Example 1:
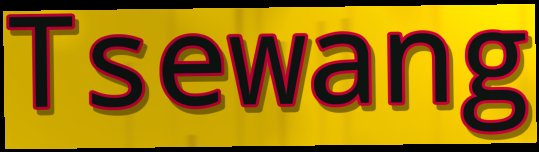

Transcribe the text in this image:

Tsewang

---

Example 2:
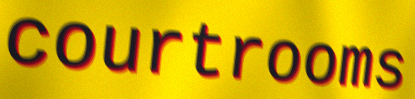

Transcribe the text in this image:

courtrooms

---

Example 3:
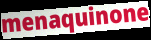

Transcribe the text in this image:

menaquinone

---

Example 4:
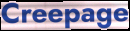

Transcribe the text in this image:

Creepage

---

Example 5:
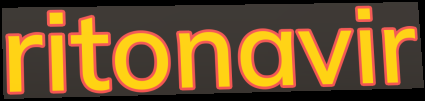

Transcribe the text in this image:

ritonavir